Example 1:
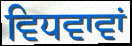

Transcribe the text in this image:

ਵਿਧਵਾਵਾਂ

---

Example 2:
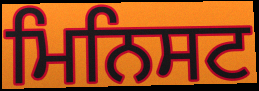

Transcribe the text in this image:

ਮਿਨਿਸਟ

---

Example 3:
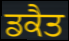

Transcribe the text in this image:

ਡਕੈਤ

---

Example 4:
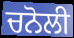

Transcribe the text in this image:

ਚਨੋਲੀ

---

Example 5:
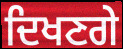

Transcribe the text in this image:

ਦਿਖਣਗੇ